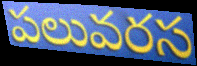
పలువరస